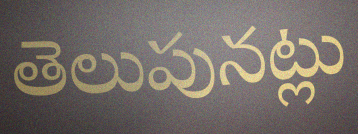
తెలుపునట్లు